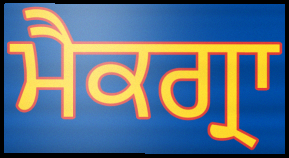
ਮੈਕਗ੍ਰਾ